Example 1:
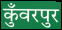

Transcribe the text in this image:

कुँवरपुर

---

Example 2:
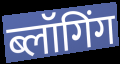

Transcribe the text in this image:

ब्‍लॉगिंग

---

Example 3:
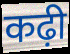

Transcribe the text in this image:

कढ़ी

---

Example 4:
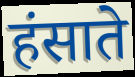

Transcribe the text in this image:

हंसाते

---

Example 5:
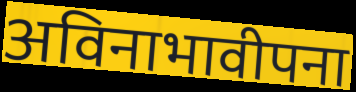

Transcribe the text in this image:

अविनाभावीपना